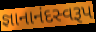
જ્ઞાનાનંદસ્વરૂપ